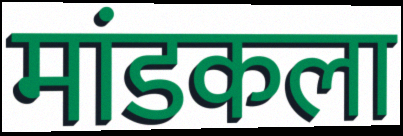
मांडकला